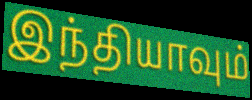
இந்தியாவும்